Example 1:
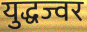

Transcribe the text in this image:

युद्धज्वर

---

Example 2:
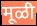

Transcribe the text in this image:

मूळी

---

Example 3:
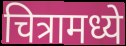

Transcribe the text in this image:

चित्रामध्ये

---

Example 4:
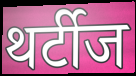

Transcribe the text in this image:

थर्टीज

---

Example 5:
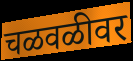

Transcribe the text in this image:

चळवळीवर